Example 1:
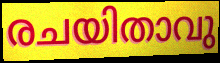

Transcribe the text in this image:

രചയിതാവു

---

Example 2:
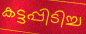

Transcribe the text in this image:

കട്ടപ്പിടിച്ച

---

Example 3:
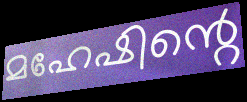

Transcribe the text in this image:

മഹേഷിന്റെ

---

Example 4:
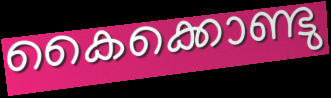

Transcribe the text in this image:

കൈക്കൊണ്ടു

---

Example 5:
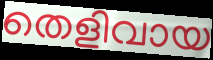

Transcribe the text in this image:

തെളിവായ